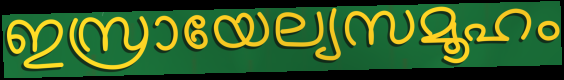
ഇസ്രായേല്യസമൂഹം